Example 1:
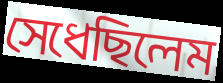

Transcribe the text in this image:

সেধেছিলেম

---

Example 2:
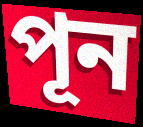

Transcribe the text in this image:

পূন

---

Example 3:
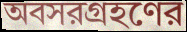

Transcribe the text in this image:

অবসরগ্রহণের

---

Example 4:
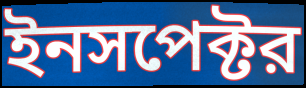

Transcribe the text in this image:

ইনসপেক্টর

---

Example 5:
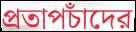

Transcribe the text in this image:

প্রতাপচাঁদের